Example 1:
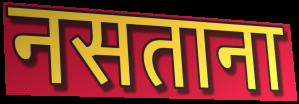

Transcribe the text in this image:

नसताना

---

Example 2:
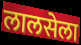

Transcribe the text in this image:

लालसेला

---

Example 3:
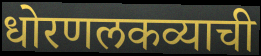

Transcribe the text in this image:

धोरणलकव्याची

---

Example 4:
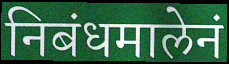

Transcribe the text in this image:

निबंधमालेनं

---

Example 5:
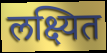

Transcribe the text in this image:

लक्ष्यित